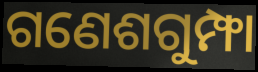
ଗଣେଶଗୁମ୍ଫା